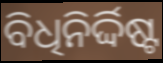
ବିଧିନିର୍ଦ୍ଦିଷ୍ଟ